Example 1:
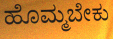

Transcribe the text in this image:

ಹೊಮ್ಮಬೇಕು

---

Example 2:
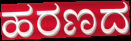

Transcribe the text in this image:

ಹರಣದ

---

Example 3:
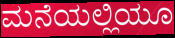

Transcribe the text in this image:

ಮನೆಯಲ್ಲಿಯೂ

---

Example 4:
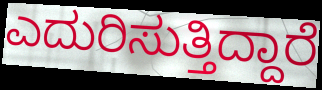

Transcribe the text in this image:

ಎದುರಿಸುತ್ತಿದ್ದಾರೆ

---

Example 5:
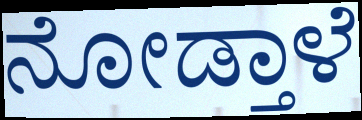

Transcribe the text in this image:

ನೋಡ್ತಾಳೆ